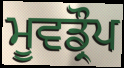
ਮੂਵਡ੍ਰੌਪ